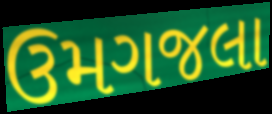
ઉમગજલા